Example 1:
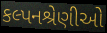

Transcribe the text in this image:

કલ્પનશ્રેણીઓ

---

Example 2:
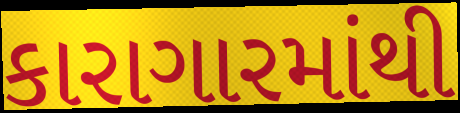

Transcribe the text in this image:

કારાગારમાંથી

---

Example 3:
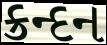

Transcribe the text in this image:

ક્રન્દન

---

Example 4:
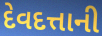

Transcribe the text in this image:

દેવદત્તાની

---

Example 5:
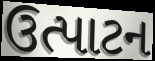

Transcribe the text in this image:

ઉત્પાટન